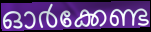
ഓർക്കേണ്ട